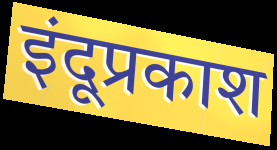
इंदूप्रकाश